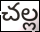
చల్ల